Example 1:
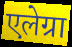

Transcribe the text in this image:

एलेग्रा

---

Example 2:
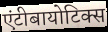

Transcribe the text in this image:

एंटीबायोटिक्स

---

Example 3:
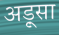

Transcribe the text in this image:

अड़ूसा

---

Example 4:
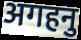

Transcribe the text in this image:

अगहनु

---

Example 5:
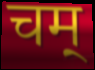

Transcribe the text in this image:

चम्